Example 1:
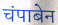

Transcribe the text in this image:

चंपाबेन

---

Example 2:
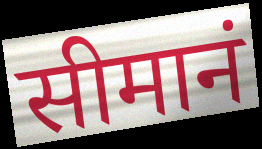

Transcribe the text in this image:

सीमानं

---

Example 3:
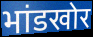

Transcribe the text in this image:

भांडखोर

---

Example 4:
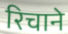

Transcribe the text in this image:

रिचाने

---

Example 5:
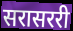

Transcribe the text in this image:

सरासररी